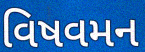
વિષવમન